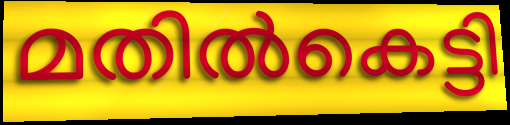
മതിൽകെട്ടി